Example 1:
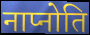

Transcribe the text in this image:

नाप्नोति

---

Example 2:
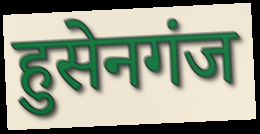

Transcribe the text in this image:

हुसेनगंज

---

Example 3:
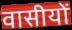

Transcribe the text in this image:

वासीयों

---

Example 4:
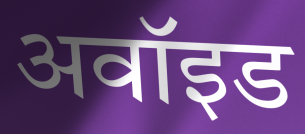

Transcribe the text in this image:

अवॉइड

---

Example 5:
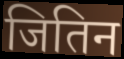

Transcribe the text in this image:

जितिन